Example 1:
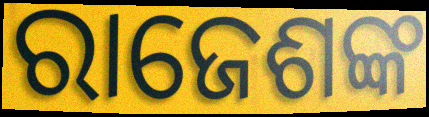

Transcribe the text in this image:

ରାଜେଶଙ୍କ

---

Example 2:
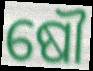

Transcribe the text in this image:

ଷୌ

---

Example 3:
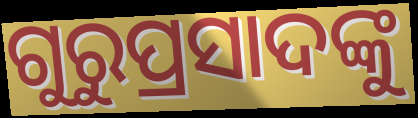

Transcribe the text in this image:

ଗୁରୁପ୍ରସାଦଙ୍କୁ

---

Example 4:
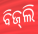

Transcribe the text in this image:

ବିଜ୍‍ଲି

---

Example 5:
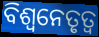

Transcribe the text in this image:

ବିଶ୍ୱନେତୃତ୍ୱ